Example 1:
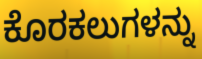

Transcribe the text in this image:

ಕೊರಕಲುಗಳನ್ನು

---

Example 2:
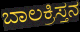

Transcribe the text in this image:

ಬಾಲಕ್ರಿಸ್ತನ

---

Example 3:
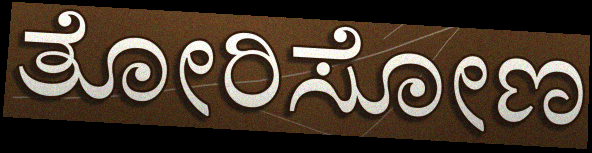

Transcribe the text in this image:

ತೋರಿಸೋಣ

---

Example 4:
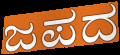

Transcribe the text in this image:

ಜಪದ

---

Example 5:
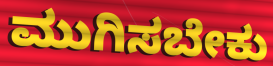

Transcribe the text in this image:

ಮುಗಿಸಬೇಕು